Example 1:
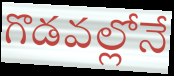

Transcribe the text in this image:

గొడవల్లోనే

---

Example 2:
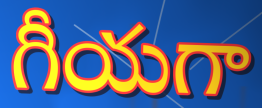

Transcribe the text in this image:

గీయగా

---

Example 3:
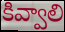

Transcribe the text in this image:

కివ్వాలి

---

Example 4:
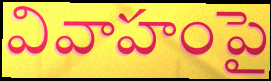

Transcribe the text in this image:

వివాహంపై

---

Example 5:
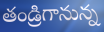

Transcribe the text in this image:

తండ్రిగానున్న